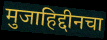
मुजाहिद्दीनचा